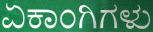
ಏಕಾಂಗಿಗಳು